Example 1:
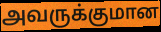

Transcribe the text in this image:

அவருக்குமான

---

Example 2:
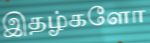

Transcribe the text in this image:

இதழ்களோ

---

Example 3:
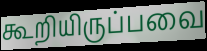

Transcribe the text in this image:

கூறியிருப்பவை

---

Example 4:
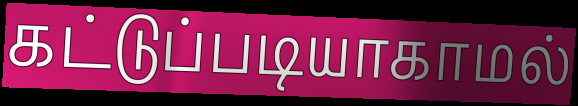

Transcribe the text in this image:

கட்டுப்படியாகாமல்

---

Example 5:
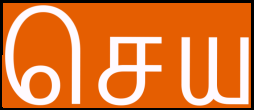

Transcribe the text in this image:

செய